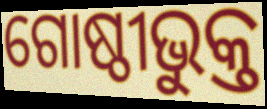
ଗୋଷ୍ଠୀଭୁକ୍ତ